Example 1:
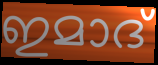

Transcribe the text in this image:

ഇമാദ്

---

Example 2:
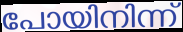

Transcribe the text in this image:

പോയിനിന്ന്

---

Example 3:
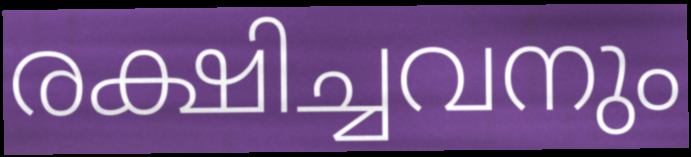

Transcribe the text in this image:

രക്ഷിച്ചവനും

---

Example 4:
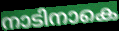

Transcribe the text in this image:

നാടിനാകെ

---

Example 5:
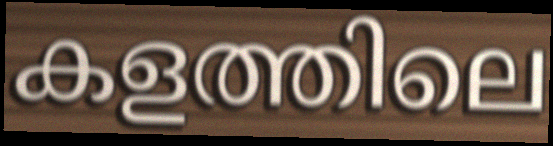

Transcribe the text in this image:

കളത്തിലെ